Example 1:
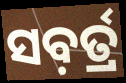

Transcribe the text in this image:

ସବ଼ର୍ତ୍ର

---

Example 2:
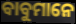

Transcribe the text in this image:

ବାବୁମାନେ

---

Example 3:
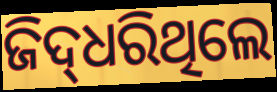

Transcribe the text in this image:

ଜିଦ୍‌ଧରିଥିଲେ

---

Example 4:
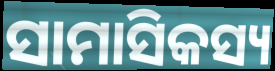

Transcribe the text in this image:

ସାମାସିକସ୍ୟ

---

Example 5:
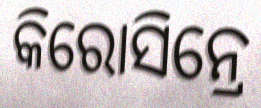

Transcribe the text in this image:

କିରୋସିନ୍ରେ